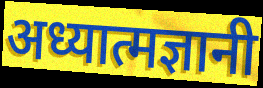
अध्यात्मज्ञानी